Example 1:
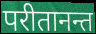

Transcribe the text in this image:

परीतानन्त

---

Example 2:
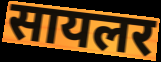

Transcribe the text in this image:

सायलर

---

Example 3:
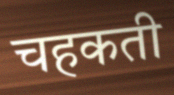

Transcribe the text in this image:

चहकती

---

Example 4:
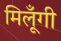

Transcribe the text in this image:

मिलूँगी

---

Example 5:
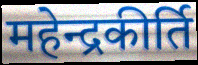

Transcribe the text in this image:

महेन्द्रकीर्ति